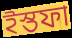
ইস্তফা